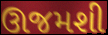
ઊજમશી